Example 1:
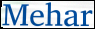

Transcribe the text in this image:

Mehar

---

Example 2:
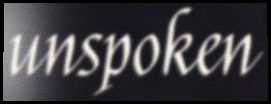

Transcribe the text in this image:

unspoken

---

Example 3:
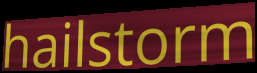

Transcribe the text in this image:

hailstorm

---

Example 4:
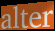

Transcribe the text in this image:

alter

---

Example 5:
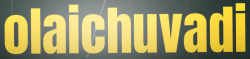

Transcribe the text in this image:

olaichuvadi